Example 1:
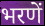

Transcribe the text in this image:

भरणें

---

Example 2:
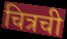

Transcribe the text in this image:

चित्रची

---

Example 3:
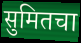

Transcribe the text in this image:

सुमितचा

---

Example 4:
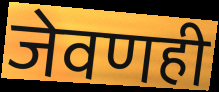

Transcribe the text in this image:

जेवणही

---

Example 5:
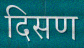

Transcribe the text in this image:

दिसण